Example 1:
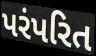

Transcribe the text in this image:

પરંપરિત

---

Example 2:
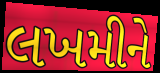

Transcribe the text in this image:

લખમીને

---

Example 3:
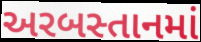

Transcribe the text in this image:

અરબસ્તાનમાં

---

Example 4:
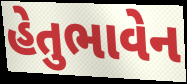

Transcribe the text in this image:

હેતુભાવેન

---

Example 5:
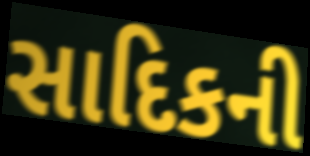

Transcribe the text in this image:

સાદિકની